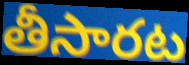
తీసారట